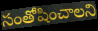
సంతోషించాలని